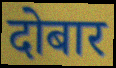
दोबार